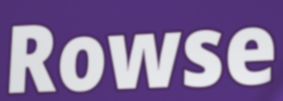
Rowse